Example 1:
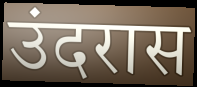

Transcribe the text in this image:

उंदरास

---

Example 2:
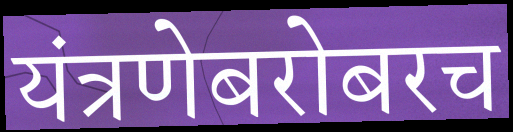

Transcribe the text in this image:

यंत्रणेबरोबरच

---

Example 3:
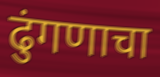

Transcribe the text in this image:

ढुंगणाचा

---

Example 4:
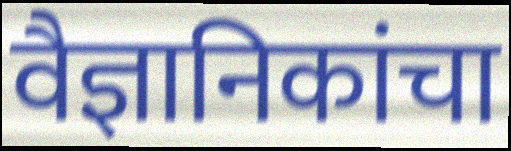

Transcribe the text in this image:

वैज्ञानिकांचा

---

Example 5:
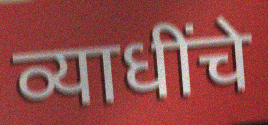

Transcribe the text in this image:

व्याधींचे